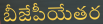
బీజేపీయేతర